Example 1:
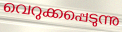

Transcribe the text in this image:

വെറുക്കപ്പെടുന്നു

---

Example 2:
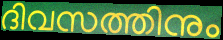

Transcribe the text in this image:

ദിവസത്തിനും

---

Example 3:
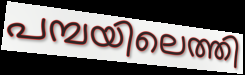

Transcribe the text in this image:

പമ്പയിലെത്തി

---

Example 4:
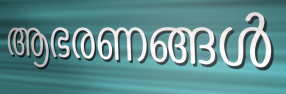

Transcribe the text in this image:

ആഭരണങ്ങൾ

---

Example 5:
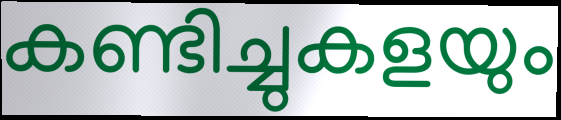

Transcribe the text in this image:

കണ്ടിച്ചുകളയും